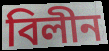
বিলীন